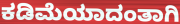
ಕಡಿಮೆಯಾದಂತಾಗಿ